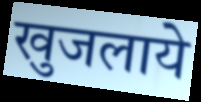
खुजलाये